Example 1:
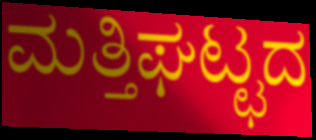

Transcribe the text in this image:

ಮತ್ತಿಘಟ್ಟದ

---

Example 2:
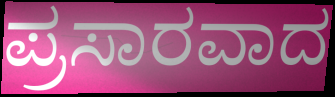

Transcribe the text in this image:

ಪ್ರಸಾರವಾದ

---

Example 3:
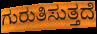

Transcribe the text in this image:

ಗುರುತಿಸುತ್ತದೆ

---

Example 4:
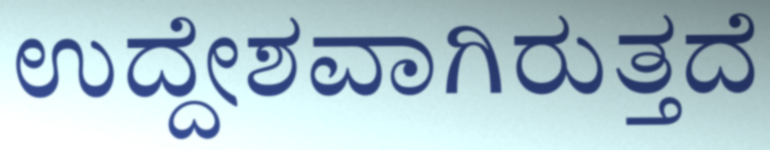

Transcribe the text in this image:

ಉದ್ದೇಶವಾಗಿರುತ್ತದೆ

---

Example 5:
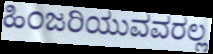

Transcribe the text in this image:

ಹಿಂಜರಿಯುವವರಲ್ಲ